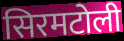
सिरमटोली